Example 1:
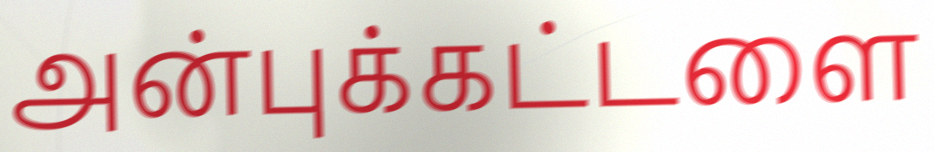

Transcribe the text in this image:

அன்புக்கட்டளை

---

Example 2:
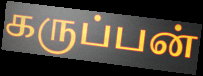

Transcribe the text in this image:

கருப்பன்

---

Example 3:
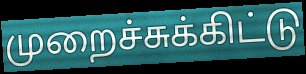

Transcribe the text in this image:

முறைச்சுக்கிட்டு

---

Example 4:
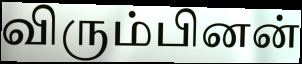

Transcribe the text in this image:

விரும்பினன்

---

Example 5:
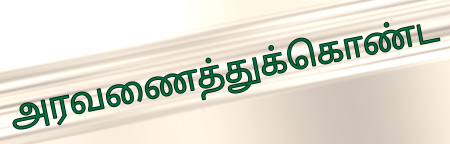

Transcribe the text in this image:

அரவணைத்துக்கொண்ட